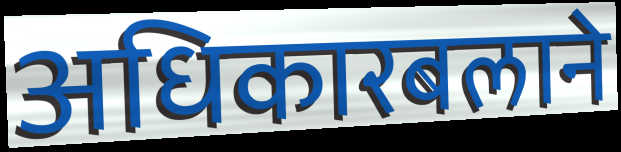
अधिकारबलाने